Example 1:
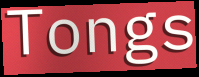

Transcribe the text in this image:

Tongs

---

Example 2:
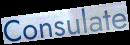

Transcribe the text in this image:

Consulate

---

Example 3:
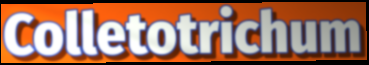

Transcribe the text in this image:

Colletotrichum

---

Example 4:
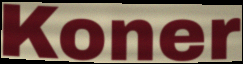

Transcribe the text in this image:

Koner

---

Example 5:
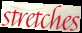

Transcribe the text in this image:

stretches